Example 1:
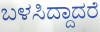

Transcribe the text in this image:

ಬಳಸಿದ್ದಾದರೆ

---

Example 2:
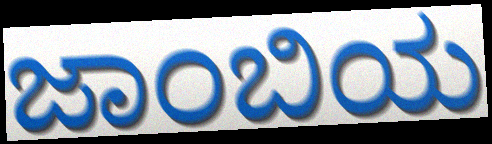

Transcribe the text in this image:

ಜಾಂಬಿಯ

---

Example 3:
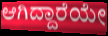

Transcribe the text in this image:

ಆಗಿದ್ದಾರೆಯೇ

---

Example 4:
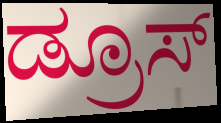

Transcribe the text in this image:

ಡ್ರೂಸ್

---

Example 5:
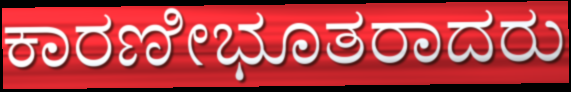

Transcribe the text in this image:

ಕಾರಣೀಭೂತರಾದರು